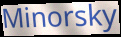
Minorsky